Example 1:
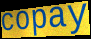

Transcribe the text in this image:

copay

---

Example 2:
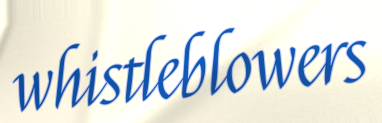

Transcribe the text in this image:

whistleblowers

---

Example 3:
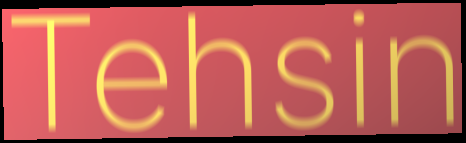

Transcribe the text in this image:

Tehsin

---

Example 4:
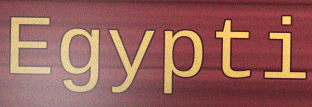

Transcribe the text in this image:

Egypti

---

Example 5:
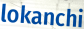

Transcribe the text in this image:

lokanchi